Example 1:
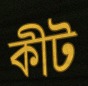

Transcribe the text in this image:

কীট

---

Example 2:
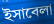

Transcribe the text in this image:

ইসাবেলা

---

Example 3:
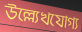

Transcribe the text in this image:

উল্ল্যেখযোগ্য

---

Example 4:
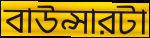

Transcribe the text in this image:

বাউন্সারটা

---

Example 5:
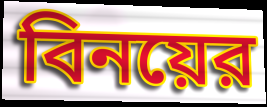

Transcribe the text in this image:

বিনয়ের